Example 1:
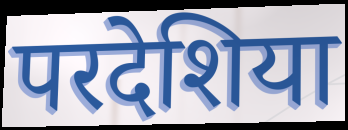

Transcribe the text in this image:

परदेशिया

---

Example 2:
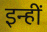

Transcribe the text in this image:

इन्‍हीं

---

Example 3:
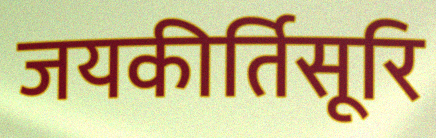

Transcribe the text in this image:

जयकीर्तिसूरि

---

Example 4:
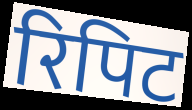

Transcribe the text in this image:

रिपिट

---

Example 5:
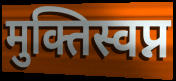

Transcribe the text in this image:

मुक्तिस्वप्न